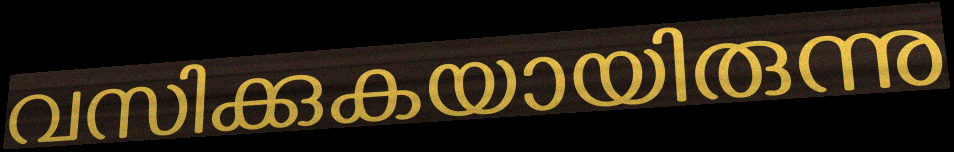
വസിക്കുകയായിരുന്നു